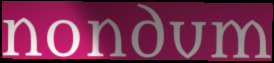
nondum